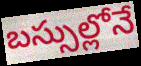
బస్సుల్లోనే